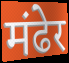
मंढेर